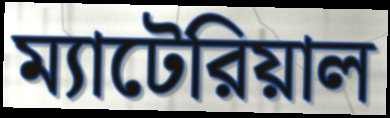
ম্যাটেরিয়াল